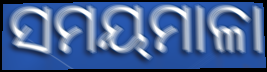
ସମୟମାଳା